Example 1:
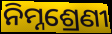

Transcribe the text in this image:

ନିମ୍ନଶ୍ରେଣୀ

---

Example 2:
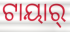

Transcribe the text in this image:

ଟାୟାର୍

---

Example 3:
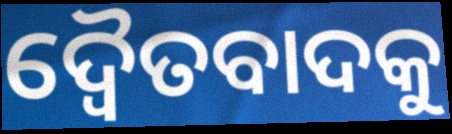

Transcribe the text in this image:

ଦ୍ୱୈତବାଦକୁ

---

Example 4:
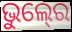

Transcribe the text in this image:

ଭୁଲ୍‍ରେ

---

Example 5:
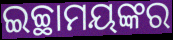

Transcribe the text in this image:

ଇଚ୍ଛାମୟଙ୍କର